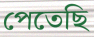
পেতেছি